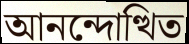
আনন্দোত্থিত